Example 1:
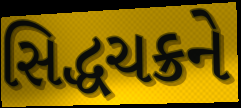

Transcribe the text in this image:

સિદ્ધચક્રને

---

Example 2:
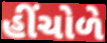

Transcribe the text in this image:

હીંચોળે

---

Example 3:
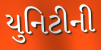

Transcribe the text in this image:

યુનિટીની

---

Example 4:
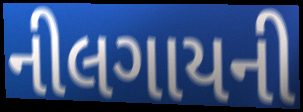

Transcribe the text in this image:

નીલગાયની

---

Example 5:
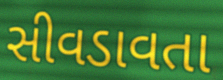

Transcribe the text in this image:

સીવડાવતા